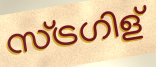
സ്ട്രഗിള്